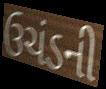
ઉચંડની